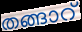
തങ്ങാറ്